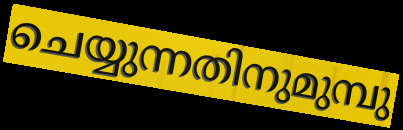
ചെയ്യുന്നതിനുമുമ്പു